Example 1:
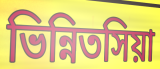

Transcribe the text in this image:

ভিন্নিতসিয়া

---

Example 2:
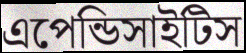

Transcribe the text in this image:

এপেন্ডিসাইটিস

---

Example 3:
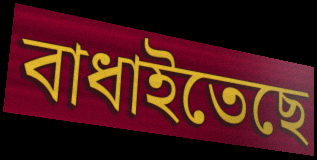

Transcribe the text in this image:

বাধাইতেছে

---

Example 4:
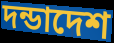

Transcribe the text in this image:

দন্ডাদেশ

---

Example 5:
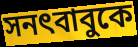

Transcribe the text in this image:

সনৎবাবুকে